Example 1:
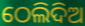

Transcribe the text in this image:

ଠେଲିଦିଅ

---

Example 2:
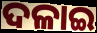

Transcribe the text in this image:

ଦଳାଇ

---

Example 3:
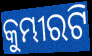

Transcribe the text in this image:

କୁମ୍ଭୀରଟି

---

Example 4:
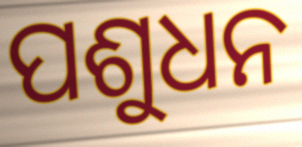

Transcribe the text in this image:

ପଶୁଧନ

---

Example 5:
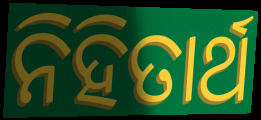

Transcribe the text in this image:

ନିହିତାର୍ଥ